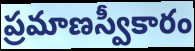
ప్రమాణస్వీకారం